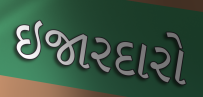
ઇજારદારો